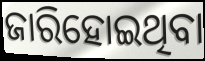
ଜାରିହୋଇଥିବା